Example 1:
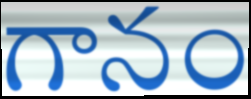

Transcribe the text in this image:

గానం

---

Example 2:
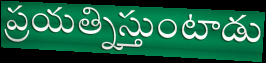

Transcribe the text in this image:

ప్రయత్నిస్తుంటాడు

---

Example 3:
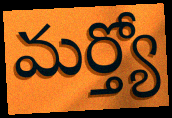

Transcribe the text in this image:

మర్త్యో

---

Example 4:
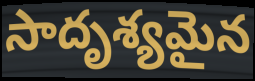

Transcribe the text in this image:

సాదృశ్యమైన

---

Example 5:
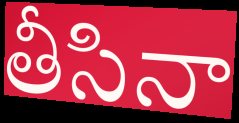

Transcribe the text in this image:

తీసినా